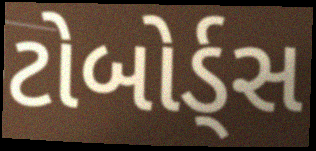
ટોબોર્ડ્સ